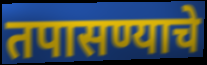
तपासण्याचे